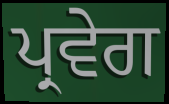
ਪ੍ਰਵੇਗ